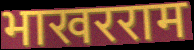
भाखरराम